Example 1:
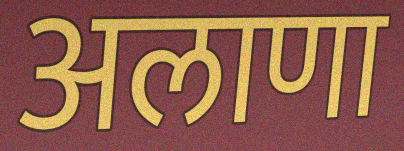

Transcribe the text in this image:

अलाणा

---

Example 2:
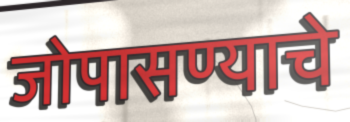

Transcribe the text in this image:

जोपासण्याचे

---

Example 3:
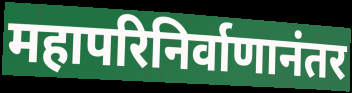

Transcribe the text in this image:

महापरिनिर्वाणानंतर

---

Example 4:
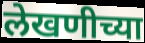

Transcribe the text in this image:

लेखणीच्या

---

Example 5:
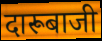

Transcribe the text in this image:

दारूबाजी